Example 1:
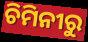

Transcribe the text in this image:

ଚିମିନୀରୁ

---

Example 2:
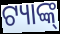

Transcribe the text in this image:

ଟ୍ୟାଙ୍କ୍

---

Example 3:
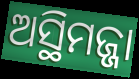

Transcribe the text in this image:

ଅସ୍ଥିମଜ୍ଜା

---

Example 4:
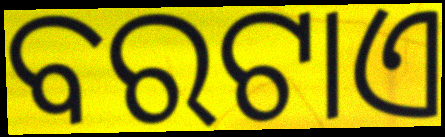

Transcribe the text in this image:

ବରଟାଏ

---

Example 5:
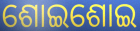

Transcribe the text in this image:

ଶୋଇଶୋଇ